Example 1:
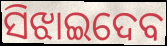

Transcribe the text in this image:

ସିଝାଇଦେବ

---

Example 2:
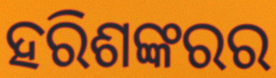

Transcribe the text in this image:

ହରିଶଙ୍କରର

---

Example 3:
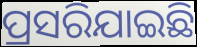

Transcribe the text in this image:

ପ୍ରସରିଯାଇଛି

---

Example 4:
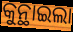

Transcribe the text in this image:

କୁନ୍ଥାଇଲା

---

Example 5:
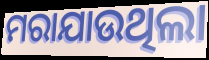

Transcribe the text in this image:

ମରାଯାଉଥିଲା